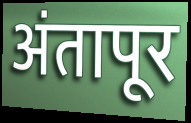
अंतापूर